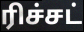
ரிச்சட்